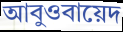
আবুওবায়েদ